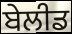
ਬੇਲੀਡ